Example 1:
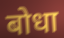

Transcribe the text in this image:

बोधा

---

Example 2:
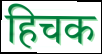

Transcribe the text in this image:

हिचक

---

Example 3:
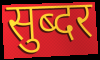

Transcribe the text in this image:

सुब्दर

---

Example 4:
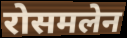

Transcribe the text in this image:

रोसमलेन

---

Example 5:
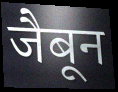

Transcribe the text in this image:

जैबून